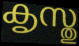
കൃസ്തു